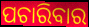
ପଚାରିବାର